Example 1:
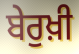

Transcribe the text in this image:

ਬੇਰੁਖ਼ੀ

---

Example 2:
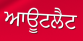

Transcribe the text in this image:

ਆਊਟਲੈਟ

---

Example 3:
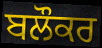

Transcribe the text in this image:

ਬਲੌਕਰ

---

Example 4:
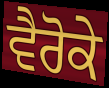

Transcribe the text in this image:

ਵੈਰੋਕੇ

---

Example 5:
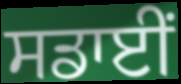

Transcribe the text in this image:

ਸਡਾਈਂ